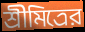
শ্রীমিত্রের